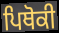
ਪਿਥੋਕੀ